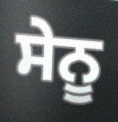
ਸੇਨੂ